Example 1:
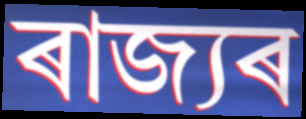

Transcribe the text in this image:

ৰাজ্যৰ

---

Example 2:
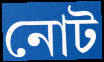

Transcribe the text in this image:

নোট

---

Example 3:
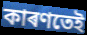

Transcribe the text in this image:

কাৰণতেই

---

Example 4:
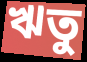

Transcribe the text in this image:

ঋতু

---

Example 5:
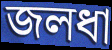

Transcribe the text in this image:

জলধা